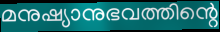
മനുഷ്യാനുഭവത്തിന്റെ